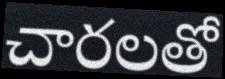
చారలతో